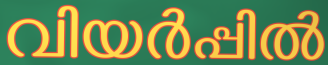
വിയർപ്പിൽ